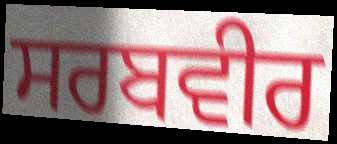
ਸਰਬਵੀਰ